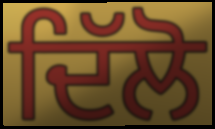
ਦਿੱਲੋ